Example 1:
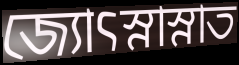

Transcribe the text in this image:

জ্যোৎস্নাস্নাত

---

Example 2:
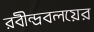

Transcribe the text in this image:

রবীন্দ্রবলয়ের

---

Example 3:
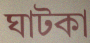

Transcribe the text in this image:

ঘাটকা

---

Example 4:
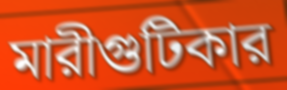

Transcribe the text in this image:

মারীগুটিকার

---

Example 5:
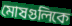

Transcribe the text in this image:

মোষগুলিকে